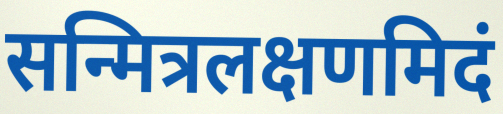
सन्मित्रलक्षणमिदं